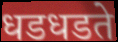
धडधडते